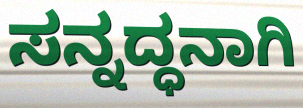
ಸನ್ನದ್ಧನಾಗಿ